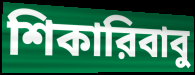
শিকারিবাবু